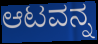
ಆಟವನ್ನ